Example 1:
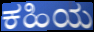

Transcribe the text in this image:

ಕಹಿಯ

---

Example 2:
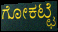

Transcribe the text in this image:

ಗೋಕಟ್ಟೆ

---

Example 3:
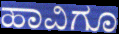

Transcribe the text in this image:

ಹಾವಿಗೂ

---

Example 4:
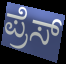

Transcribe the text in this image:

ಪ್ರೆಸ್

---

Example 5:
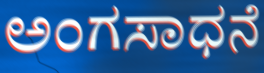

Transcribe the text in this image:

ಅಂಗಸಾಧನೆ